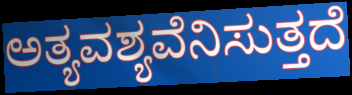
ಅತ್ಯವಶ್ಯವೆನಿಸುತ್ತದೆ